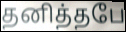
தனித்தபே